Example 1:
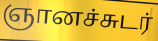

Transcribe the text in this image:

ஞானச்சுடர்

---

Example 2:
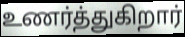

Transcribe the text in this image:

உணர்த்துகிறார்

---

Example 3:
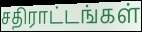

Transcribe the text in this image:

சதிராட்டங்கள்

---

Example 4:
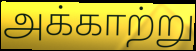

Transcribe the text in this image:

அக்காற்று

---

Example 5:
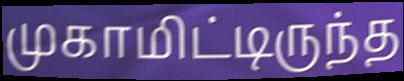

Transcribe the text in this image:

முகாமிட்டிருந்த